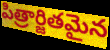
పిత్రార్జితమైన